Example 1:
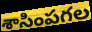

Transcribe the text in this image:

శాసింపగల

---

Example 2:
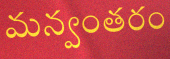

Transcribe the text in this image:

మన్వంతరం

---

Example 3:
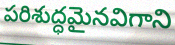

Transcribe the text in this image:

పరిశుద్ధమైనవిగాని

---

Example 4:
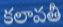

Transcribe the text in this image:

కలావతీ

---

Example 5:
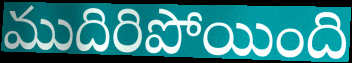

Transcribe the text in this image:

ముదిరిపోయింది